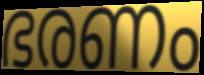
ഭരണം